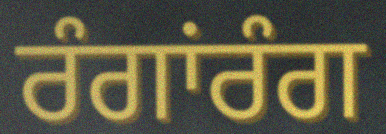
ਰੰਗਾਂਰੰਗ